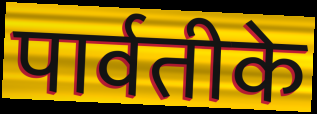
पार्वतीके